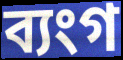
ব্যংগ